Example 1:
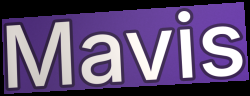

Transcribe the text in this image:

Mavis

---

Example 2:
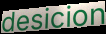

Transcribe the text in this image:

desicion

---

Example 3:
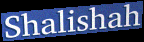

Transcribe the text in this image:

Shalishah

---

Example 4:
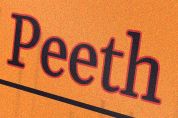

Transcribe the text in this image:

Peeth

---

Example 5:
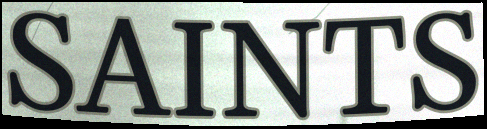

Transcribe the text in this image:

SAINTS